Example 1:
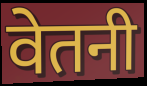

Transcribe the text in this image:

वेतनी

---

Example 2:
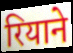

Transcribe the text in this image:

रियाने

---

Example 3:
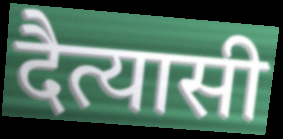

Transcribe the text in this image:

दैत्यासी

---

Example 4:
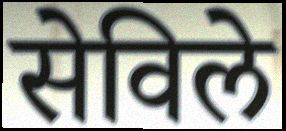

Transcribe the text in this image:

सेविले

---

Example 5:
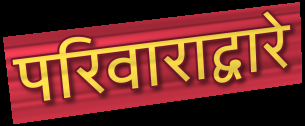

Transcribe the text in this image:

परिवाराद्वारे